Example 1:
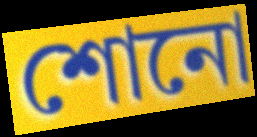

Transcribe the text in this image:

শোনো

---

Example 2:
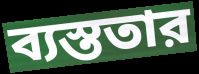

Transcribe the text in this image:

ব্যস্ততার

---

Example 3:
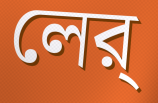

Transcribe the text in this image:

লের্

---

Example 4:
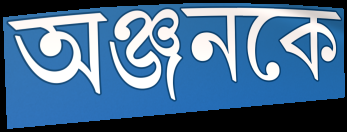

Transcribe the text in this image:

অঞ্জনকে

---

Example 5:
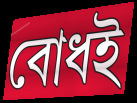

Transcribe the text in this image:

বোধই